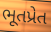
ભૂતપ્રેત